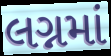
લગ્નમાં